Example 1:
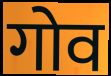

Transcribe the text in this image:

गोव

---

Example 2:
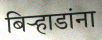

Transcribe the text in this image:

बिऱ्हाडांना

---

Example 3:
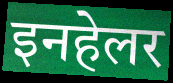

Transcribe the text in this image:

इनहेलर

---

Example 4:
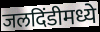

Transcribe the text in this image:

जलदिंडीमध्ये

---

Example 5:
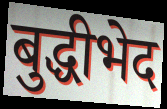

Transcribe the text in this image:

बुद्धीभेद